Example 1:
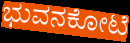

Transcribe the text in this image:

ಭುವನಕೋಟೆ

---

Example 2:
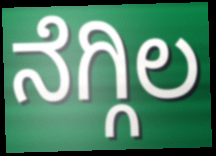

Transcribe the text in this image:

ನೆಗ್ಗಿಲ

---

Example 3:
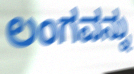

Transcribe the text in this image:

ಲಂಗವನ್ನು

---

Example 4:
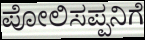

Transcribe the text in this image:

ಪೋಲಿಸಪ್ಪನಿಗೆ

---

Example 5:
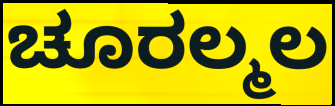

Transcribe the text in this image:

ಚೂರಲ್ಮಲ